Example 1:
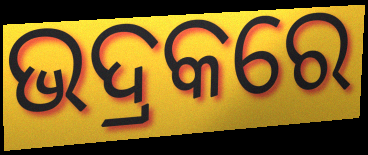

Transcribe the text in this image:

ଭଦ୍ରକରେ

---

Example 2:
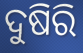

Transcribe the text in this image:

ଦୁଷିରି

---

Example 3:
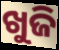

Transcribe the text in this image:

ଖୁଜି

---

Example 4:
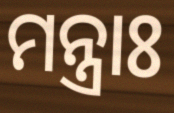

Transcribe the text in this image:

ମନ୍ତ୍ରାଃ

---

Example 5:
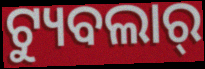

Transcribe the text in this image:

ଟ୍ୟୁବଲାର୍